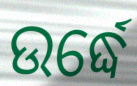
ଉର୍ଦ୍ଧେ